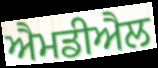
ਐਮਡੀਐਲ